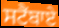
ਸਟੈਂਬਾਏ